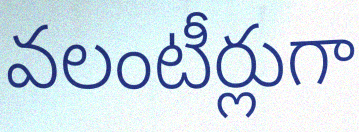
వలంటీర్లుగా